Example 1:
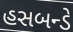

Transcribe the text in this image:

હસબન્ડે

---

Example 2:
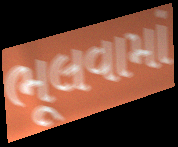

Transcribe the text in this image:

ભૂલવામાં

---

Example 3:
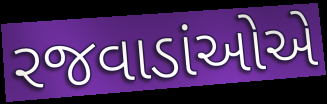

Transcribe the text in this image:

રજવાડાંઓએ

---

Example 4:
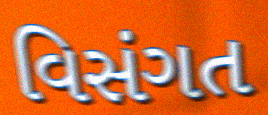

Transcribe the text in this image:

વિસંગત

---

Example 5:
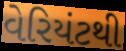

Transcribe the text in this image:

વેરિયંટથી